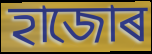
হাজোৰ